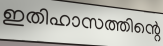
ഇതിഹാസത്തിന്റെ